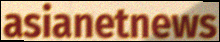
asianetnews